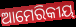
ଆମେରିକୀୟ